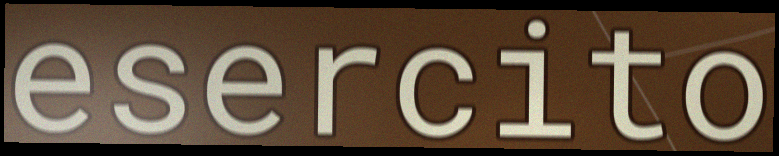
esercito